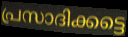
പ്രസാദിക്കട്ടെ